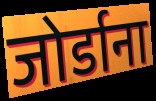
जोर्डाना